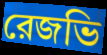
রেজভি